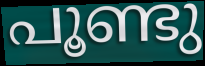
പൂണ്ടു